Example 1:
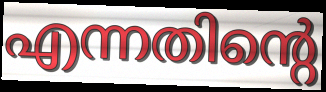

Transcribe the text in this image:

എന്നതിന്റെ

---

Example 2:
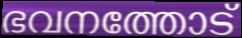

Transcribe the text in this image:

ഭവനത്തോട്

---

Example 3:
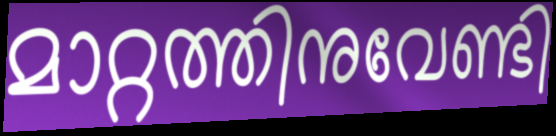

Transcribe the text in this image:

മാറ്റത്തിനുവേണ്ടി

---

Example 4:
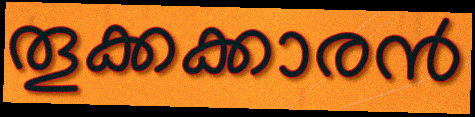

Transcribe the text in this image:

തൂക്കക്കാരൻ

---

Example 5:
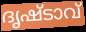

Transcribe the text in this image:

ദൃഷ്ടാവ്